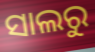
ସାଲରୁ